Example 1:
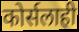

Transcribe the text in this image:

कोर्सलाही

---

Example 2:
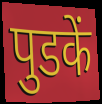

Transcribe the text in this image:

पुडकें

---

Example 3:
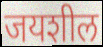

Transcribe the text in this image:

जयशील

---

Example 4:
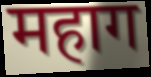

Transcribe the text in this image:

महाग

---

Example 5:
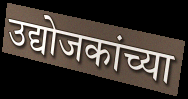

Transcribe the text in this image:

उद्योजकांच्या